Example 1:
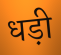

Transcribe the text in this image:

धड़ी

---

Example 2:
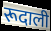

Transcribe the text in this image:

रूदाली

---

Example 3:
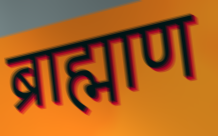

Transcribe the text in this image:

ब्राह्माण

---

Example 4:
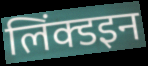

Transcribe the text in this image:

लिंक्‍डइन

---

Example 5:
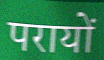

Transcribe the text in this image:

परायों